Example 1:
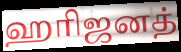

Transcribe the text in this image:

ஹரிஜனத்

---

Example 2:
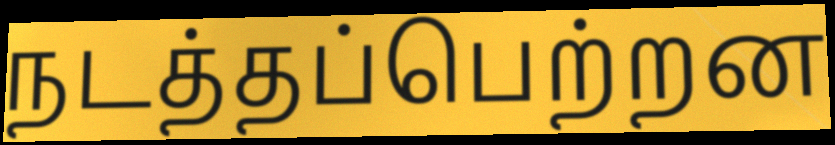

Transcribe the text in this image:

நடத்தப்பெற்றன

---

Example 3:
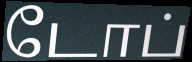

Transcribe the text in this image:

டோப்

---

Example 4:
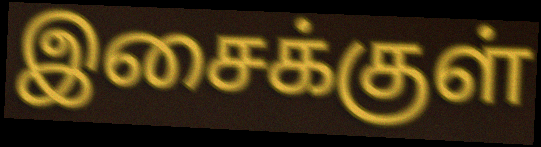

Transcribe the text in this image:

இசைக்குள்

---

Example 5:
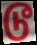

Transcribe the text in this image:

டூ